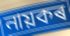
নায়কৰ